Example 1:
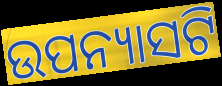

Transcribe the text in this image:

ଉପନ୍ୟାସଟି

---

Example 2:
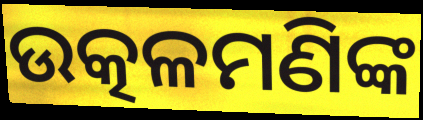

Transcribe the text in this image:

ଉତ୍କଳମଣିଙ୍କ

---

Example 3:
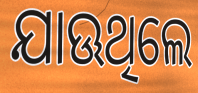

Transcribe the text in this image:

ଯାଊଥିଲେ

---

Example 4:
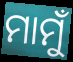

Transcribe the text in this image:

ମାମୁଁ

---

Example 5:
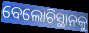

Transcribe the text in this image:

ବେଲୋଚିସ୍ଥାନକୁ